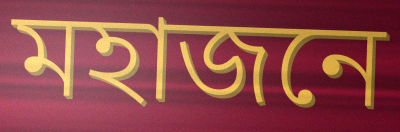
মহাজনে